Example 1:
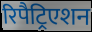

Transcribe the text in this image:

रिपैट्रिएशन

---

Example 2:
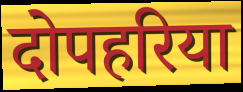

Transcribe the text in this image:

दोपहरिया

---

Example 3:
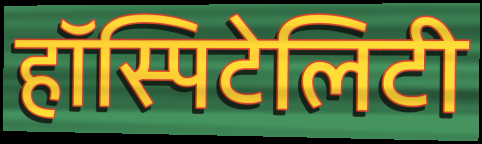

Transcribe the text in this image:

हॉस्पिटेलिटी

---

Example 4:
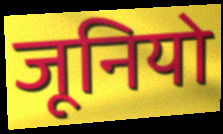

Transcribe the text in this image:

जूनियो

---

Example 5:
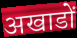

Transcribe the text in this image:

अखाडों